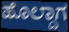
ಹೊಲ್ದಾಗ